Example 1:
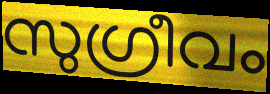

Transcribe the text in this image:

സുഗ്രീവം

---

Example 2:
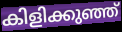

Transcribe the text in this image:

കിളിക്കുഞ്ഞ്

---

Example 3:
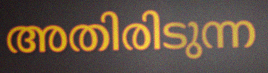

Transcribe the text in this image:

അതിരിടുന്ന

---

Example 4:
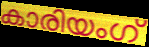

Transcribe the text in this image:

കാരിയംഗ്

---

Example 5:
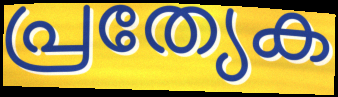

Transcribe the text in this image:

പ്രത്യേക